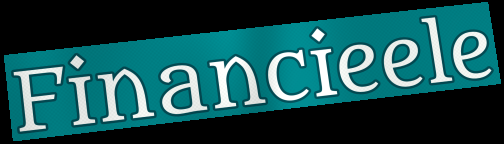
Financieele